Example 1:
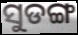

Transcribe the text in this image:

ସୁଡଙ୍ଗ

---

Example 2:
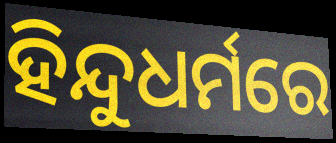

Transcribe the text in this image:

ହିନ୍ଦୁଧର୍ମରେ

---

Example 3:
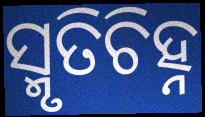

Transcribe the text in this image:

ସ୍ମୃତିଚିହ୍ନ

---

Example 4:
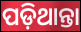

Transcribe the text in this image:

ପଡ଼ିଥାନ୍ତା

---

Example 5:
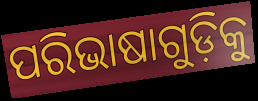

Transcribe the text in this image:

ପରିଭାଷାଗୁଡ଼ିକୁ